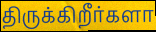
திருக்கிறீர்களா